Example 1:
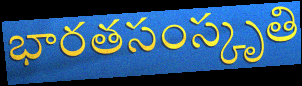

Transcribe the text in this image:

భారతసంస్కృతి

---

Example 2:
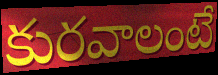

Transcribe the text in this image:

కురవాలంటే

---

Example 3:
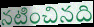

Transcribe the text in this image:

నటించినది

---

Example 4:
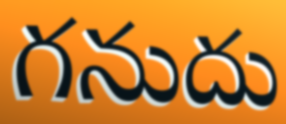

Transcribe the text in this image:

గనుదు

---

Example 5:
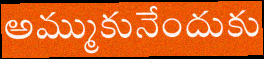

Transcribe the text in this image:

అమ్ముకునేందుకు